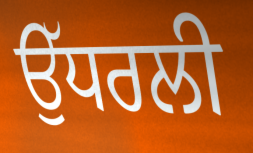
ਉੱਧਰਲੀ